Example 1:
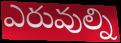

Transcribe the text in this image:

ఎరువుల్ని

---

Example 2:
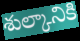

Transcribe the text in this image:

శుల్కానికి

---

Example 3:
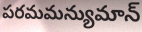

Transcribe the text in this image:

పరమమన్యుమాన్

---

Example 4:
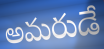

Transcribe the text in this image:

అమరుడే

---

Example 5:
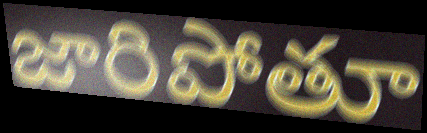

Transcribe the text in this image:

జారిపోతూ